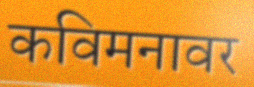
कविमनावर